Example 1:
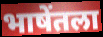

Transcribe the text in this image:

भाषेंतला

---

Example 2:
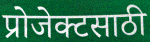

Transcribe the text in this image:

प्रोजेक्टसाठी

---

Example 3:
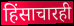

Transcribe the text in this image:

हिंसाचारही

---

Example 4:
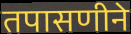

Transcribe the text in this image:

तपासणीने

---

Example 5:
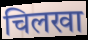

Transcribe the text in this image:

चिलखा